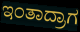
ಇಂತಾದ್ರಾಗ